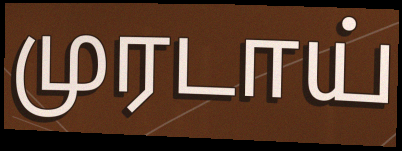
முரடாய்